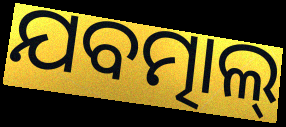
ଯବତ୍ମାଲ୍